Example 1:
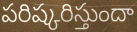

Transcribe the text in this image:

పరిష్కరిస్తుందా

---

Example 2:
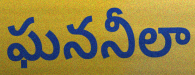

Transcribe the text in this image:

ఘననీలా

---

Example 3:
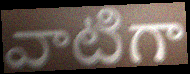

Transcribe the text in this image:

వాటిగా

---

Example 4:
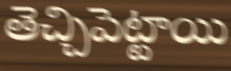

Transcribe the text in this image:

తెచ్చిపెట్టాయి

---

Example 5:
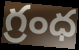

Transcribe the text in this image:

గ్రంధ